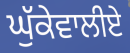
ਘੁੱਕੇਵਾਲੀਏ